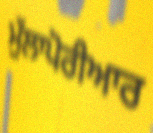
ਮੁੱਲਾਪੋਰੀਆਰ